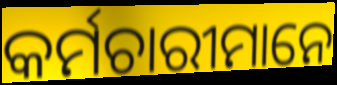
କର୍ମଚାରୀମାନେ